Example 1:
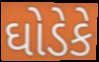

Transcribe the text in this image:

ઘોડેકે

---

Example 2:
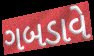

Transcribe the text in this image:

ગબડાવે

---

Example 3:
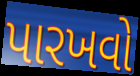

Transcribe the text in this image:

પારખવો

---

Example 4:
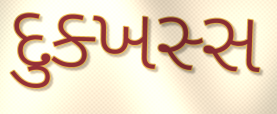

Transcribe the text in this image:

દુક્ખસ્સ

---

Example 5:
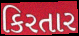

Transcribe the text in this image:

કિરતાર